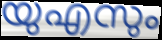
യുഎസും